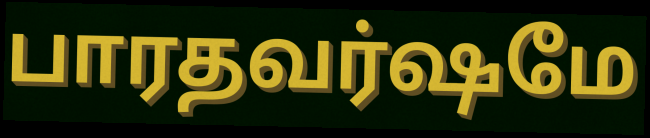
பாரதவர்ஷமே